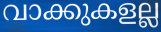
വാക്കുകളല്ല